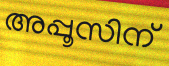
അപ്പൂസിന്